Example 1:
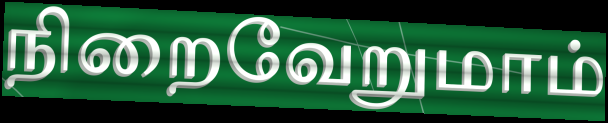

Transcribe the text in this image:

நிறைவேறுமாம்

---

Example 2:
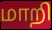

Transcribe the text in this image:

மாறி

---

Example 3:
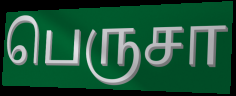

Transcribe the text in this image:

பெருசா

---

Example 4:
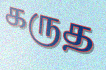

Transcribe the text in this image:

கருத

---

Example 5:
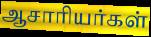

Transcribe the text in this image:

ஆசாரியர்கள்